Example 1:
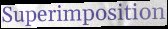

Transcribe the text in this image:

Superimposition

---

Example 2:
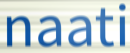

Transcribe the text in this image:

naati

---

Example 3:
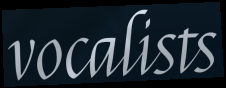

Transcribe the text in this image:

vocalists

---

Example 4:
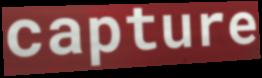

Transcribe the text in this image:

capture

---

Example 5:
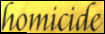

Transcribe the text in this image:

homicide